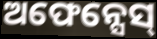
ଅଫେନ୍ସେସ୍